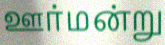
ஊர்மன்று